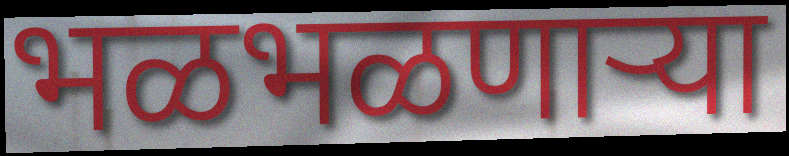
भळभळणाऱ्या